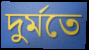
দুর্মতে